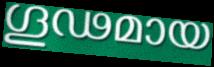
ഗൂഢമായ